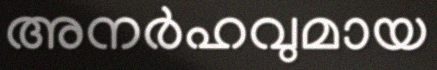
അനർഹവുമായ